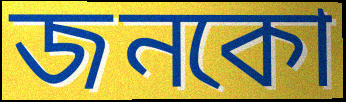
জনকো